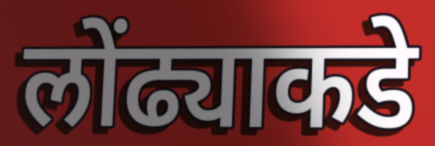
लोंढ्याकडे